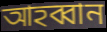
আহব্বান